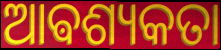
ଆଵଶ୍ୟକତା